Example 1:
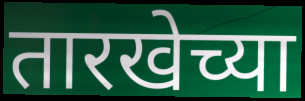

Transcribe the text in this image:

तारखेच्या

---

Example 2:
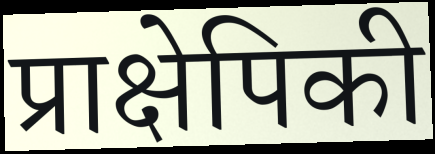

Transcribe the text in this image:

प्राक्षेपिकी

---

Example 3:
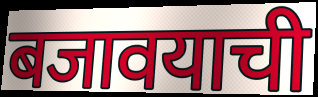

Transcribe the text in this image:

बजावयाची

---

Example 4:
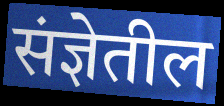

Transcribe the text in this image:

संज्ञेतील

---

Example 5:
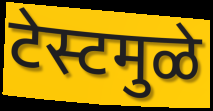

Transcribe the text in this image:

टेस्टमुळे